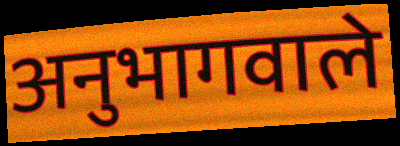
अनुभागवाले